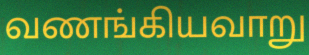
வணங்கியவாறு